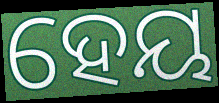
ହେୟ